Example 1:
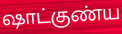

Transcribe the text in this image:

ஷாட்குண்ய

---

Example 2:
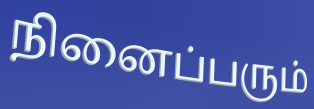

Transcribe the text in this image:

நினைப்பரும்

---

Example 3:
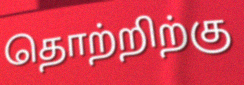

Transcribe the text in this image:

தொற்றிற்கு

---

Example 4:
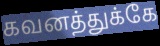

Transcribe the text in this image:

கவனத்துக்கே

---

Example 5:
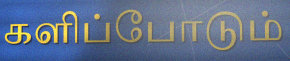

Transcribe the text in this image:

களிப்போடும்